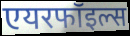
एयरफॉइल्स